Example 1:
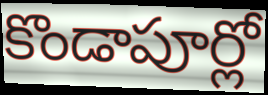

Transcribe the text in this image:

కొండాపూర్లో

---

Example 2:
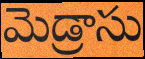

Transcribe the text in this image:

మెడ్రాసు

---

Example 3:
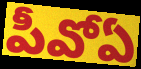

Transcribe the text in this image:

పీవోఏ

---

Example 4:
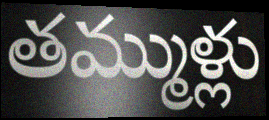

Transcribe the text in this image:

తమ్ముళ్లు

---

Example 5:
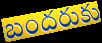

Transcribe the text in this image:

బందరుకు